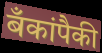
बँकांपैकी